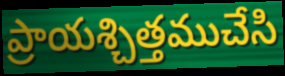
ప్రాయశ్చిత్తముచేసి